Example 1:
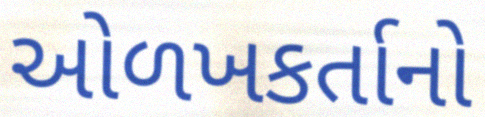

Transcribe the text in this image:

ઓળખકર્તાનો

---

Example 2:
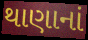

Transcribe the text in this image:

થાણાનાં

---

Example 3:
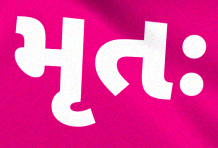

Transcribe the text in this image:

મૃતઃ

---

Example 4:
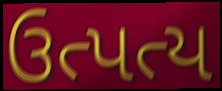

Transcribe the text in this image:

ઉત્પત્ય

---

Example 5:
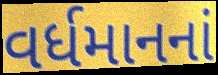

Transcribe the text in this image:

વર્ધમાનનાં